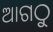
ଆଗଠୁ